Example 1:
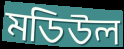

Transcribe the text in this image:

মডিউল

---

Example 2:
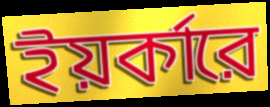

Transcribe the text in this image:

ইয়র্কারে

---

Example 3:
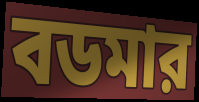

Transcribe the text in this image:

বডমার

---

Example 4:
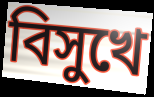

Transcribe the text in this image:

বিসুখে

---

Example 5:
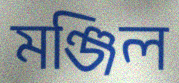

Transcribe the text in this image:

মঞ্জিল